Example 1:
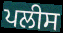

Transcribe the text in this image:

ਪਲੀਸ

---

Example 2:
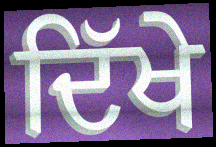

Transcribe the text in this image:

ਦਿੱਖੇ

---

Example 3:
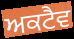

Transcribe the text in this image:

ਅਕਟੈਵ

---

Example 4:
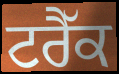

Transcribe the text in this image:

ਟਰੈੱਕ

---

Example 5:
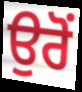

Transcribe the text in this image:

ਉਰੋਂ